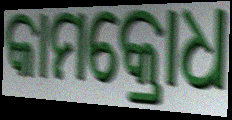
କାମକ୍ରୋଧ